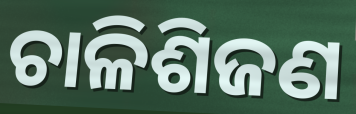
ଚାଳିଶିଜଣ